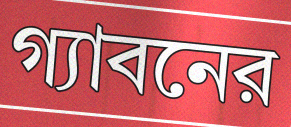
গ্যাবনের